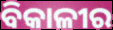
ବିକାଳୀର